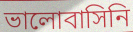
ভালোবাসিনি